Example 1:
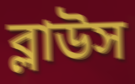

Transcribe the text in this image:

ব্লাউস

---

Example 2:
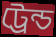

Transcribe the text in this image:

ট্রেন্ড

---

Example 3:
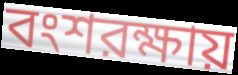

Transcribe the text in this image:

বংশরক্ষায়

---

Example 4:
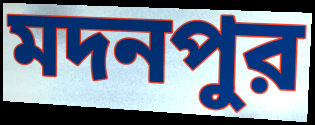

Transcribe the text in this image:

মদনপুর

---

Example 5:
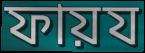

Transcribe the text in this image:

ফায়য